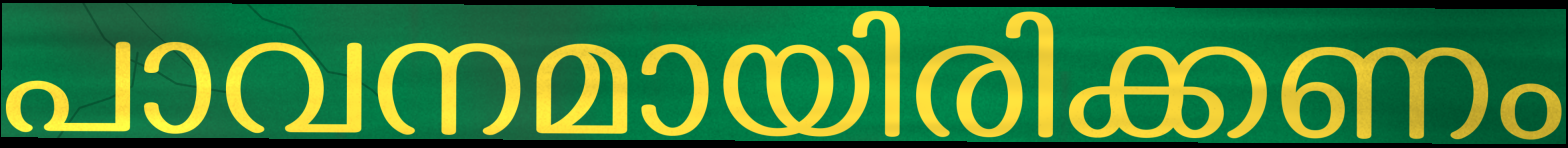
പാവനമായിരിക്കണം